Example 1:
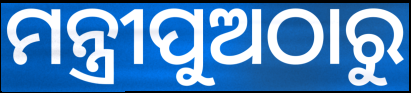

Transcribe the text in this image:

ମନ୍ତ୍ରୀପୁଅଠାରୁ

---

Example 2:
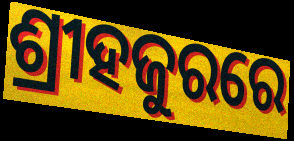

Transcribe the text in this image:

ଶ୍ରୀହଜୁରରେ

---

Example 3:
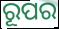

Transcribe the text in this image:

ରୂପର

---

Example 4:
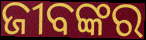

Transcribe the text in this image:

ଜୀବଙ୍କର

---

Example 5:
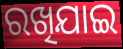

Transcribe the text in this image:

ରଖିଯାଇ